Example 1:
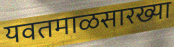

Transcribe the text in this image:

यवतमाळसारख्या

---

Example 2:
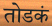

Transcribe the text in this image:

तोडकं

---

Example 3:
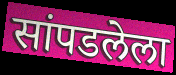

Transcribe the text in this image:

सांपडलेला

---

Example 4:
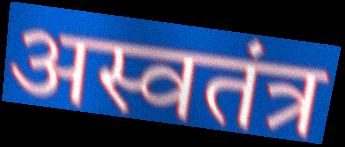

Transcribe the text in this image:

अस्वतंत्र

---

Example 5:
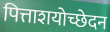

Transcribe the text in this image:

पित्ताशयोच्छेदन